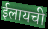
ईलायची